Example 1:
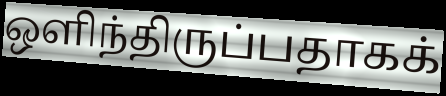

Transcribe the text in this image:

ஒளிந்திருப்பதாகக்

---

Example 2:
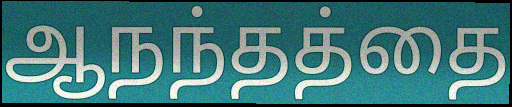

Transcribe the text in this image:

ஆநந்தத்தை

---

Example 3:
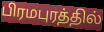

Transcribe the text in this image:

பிரமபுரத்தில்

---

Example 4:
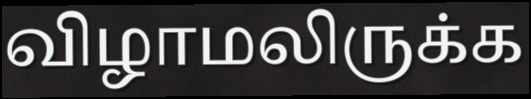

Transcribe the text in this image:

விழாமலிருக்க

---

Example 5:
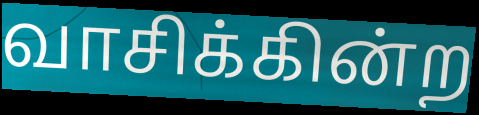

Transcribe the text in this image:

வாசிக்கின்ற